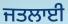
ਜਤਲਾਈ